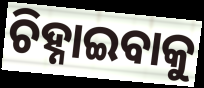
ଚିହ୍ନାଇବାକୁ